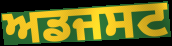
ਅਡਜਸਟ